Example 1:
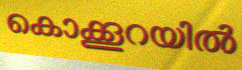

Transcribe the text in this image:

കൊക്കൂറയിൽ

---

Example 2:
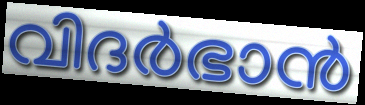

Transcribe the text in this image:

വിദർഭാൻ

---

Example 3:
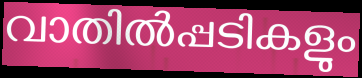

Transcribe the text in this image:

വാതിൽപ്പടികളും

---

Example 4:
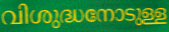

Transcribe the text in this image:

വിശുദ്ധനോടുള്ള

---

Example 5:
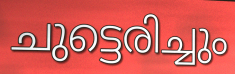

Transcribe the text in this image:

ചുട്ടെരിച്ചും